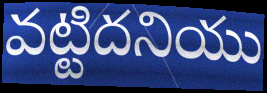
వట్టిదనియు